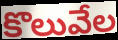
కొలువేల